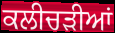
ਕਲੀਚੜੀਆਂ